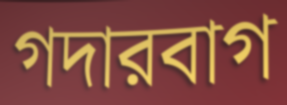
গদারবাগ